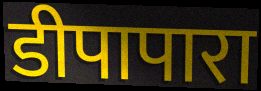
डीपापारा